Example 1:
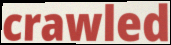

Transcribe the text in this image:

crawled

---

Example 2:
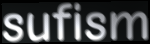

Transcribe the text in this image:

sufism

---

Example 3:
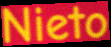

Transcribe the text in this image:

Nieto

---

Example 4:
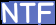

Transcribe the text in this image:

NTF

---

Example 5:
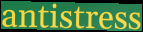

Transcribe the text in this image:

antistress